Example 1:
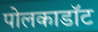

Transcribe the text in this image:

पोलकाडॉट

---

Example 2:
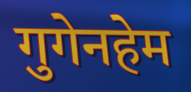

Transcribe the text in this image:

गुगेनहेम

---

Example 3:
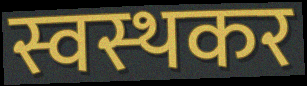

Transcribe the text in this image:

स्वस्थकर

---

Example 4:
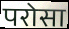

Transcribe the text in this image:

परोसा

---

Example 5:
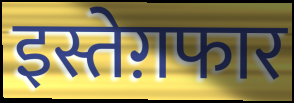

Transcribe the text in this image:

इस्तेग़फार